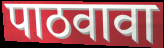
पाठवावा